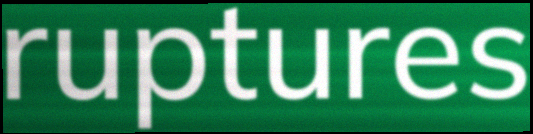
ruptures